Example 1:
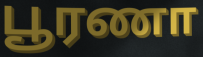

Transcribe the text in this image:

பூரணா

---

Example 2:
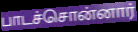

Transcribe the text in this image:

பாடச்சொன்னார்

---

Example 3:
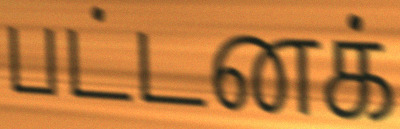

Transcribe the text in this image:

பட்டனக்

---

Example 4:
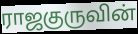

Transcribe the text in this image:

ராஜகுருவின்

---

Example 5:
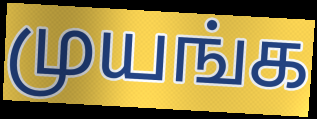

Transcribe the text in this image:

முயங்க